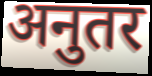
अनुतर